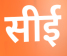
सीई